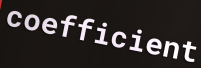
coefficient